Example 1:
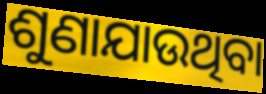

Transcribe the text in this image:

ଶୁଣାଯାଉଥିବା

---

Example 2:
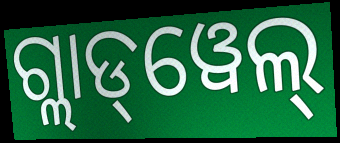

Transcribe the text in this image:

ଗ୍ଲାଡ୍‌ୱେଲ୍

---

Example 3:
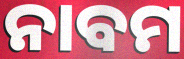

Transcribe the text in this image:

ନାବମ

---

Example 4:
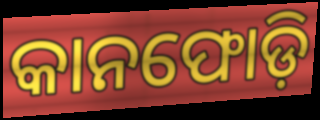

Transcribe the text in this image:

କାନଫୋଡ଼ି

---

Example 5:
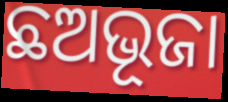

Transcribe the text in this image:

ଛଅଭୂଜା